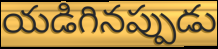
యడిగినప్పుడు